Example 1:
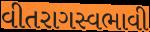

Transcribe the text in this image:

વીતરાગસ્વભાવી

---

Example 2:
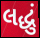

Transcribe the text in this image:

લદ્ધું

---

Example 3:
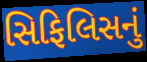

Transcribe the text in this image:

સિફિલિસનું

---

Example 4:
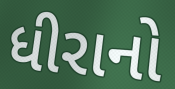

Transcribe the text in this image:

ધીરાનો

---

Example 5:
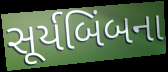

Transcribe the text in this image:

સૂર્યબિંબના